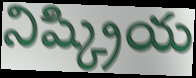
నిష్క్రియ